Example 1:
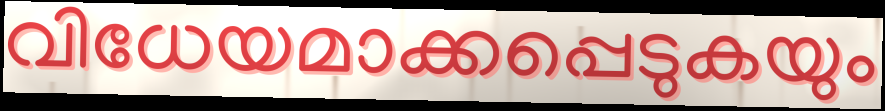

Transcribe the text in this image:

വിധേയമാക്കപ്പെടുകയും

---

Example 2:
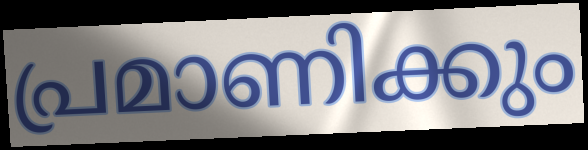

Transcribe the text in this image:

പ്രമാണിക്കും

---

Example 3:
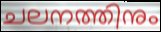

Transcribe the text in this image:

ചലനത്തിനും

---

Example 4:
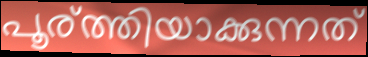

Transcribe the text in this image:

പൂര്ത്തിയാക്കുന്നത്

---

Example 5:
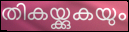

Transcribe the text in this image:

തികയ്ക്കുകയും